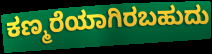
ಕಣ್ಮರೆಯಾಗಿರಬಹುದು